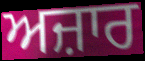
ਅਜ਼ਾਰ